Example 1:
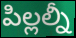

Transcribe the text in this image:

పిల్లల్నీ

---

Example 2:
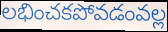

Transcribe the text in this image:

లభించకపోవడంవల్ల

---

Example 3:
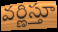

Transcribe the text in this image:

వర్ణిస్తూ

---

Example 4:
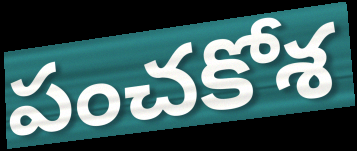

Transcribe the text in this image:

పంచకోశ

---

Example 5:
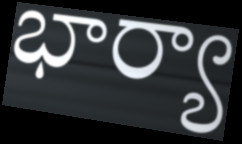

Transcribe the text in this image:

భార్యా